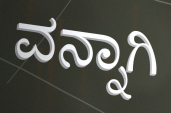
ವನ್ನಾಗಿ